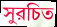
সুরচিত